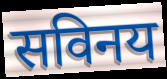
सविनय